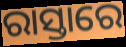
ରାସ୍ତାରେ